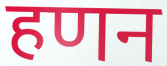
हणन